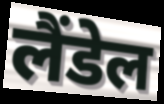
लैंडेल